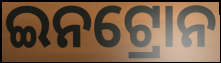
ଇନଟ୍ରୋନ